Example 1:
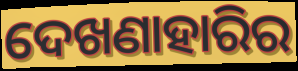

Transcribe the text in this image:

ଦେଖଣାହାରିର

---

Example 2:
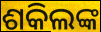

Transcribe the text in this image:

ଶକିଲଙ୍କ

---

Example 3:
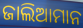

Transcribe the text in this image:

ଜାଲିଆମାନ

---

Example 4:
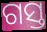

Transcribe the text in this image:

ଗସ୍ତ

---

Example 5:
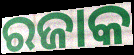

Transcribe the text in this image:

ରଜାକ